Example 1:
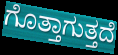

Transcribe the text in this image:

ಗೊತ್ತಾಗುತ್ತದೆ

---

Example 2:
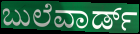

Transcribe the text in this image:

ಬುಲೆವಾರ್ಡ್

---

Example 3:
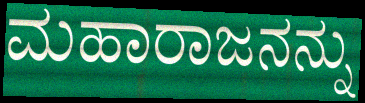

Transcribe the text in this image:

ಮಹಾರಾಜನನ್ನು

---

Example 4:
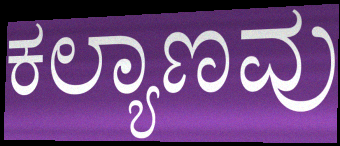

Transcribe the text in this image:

ಕಲ್ಯಾಣವು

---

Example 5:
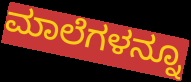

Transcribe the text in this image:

ಮಾಲೆಗಳನ್ನೂ